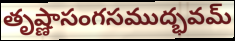
తృష్ణాసంగసముద్భవమ్